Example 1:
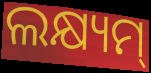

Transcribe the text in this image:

ଲକ୍ଷ୍ୟମ୍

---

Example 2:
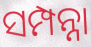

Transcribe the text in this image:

ସମ୍ପନ୍ନା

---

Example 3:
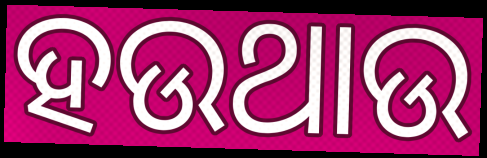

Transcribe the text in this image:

ହଉଥାଉ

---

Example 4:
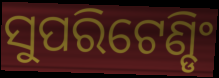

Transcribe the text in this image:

ସୁପରିଟେଣ୍ଡିଂ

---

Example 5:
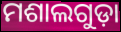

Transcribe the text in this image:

ମଶାଲଗୁଡ଼ା